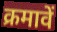
क्रमावें